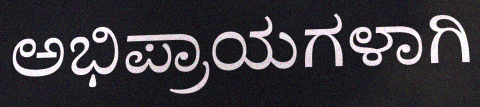
ಅಭಿಪ್ರಾಯಗಳಾಗಿ